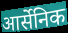
आर्सेनिक